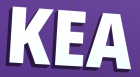
KEA